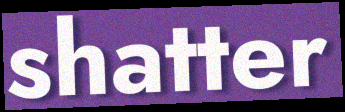
shatter